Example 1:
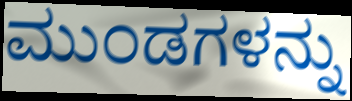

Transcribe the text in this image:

ಮುಂಡಗಳನ್ನು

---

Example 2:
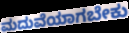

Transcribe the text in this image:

ಮದುವೆಯಾಗಬೇಕು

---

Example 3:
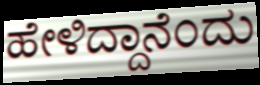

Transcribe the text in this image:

ಹೇಳಿದ್ದಾನೆಂದು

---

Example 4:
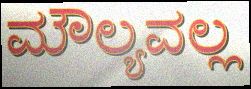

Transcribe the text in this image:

ಮೌಲ್ಯವಲ್ಲ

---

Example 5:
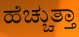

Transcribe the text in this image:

ಹೆಚ್ಚುತ್ತಾ